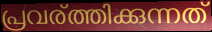
പ്രവര്ത്തിക്കുന്നത്